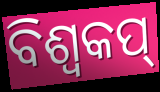
ବିଶ୍ବକପ୍